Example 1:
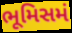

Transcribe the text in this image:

ભૂમિસમં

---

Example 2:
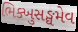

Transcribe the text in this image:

ભિક્ખુસઙ્ઘમેવ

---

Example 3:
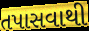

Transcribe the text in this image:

તપાસવાથી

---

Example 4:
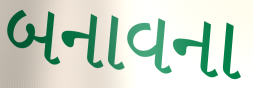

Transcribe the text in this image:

બનાવના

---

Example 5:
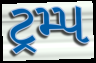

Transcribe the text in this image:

ટ્રમ્પ